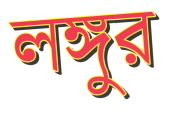
লঙ্গুর